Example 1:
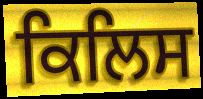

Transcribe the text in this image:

ਕਿਲਿਸ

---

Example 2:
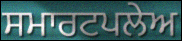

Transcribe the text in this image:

ਸਮਾਰਟਪਲੇਅ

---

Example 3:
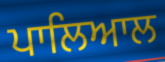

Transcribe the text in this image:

ਪਾਲਿਆਲ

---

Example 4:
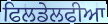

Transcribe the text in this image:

ਫਿਲਡੇਲਫੀਆ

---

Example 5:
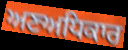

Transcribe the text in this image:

ਅਣਅਧਿਕਾਰ